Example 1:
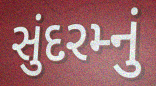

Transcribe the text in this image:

સુંદરમ્નું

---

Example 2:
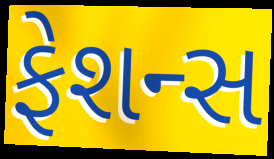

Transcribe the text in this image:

ફેશન્સ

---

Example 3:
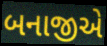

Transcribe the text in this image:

બનાજીએ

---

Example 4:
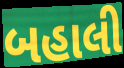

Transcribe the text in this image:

બહાલી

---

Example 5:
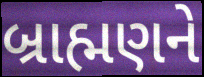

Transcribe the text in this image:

બ્રાહ્મણને